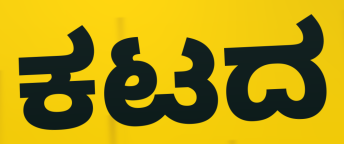
ಕಟದ